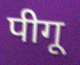
पीगू